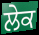
ਲੇਕ